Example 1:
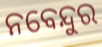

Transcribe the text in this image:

ନବେନ୍ଦୁର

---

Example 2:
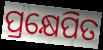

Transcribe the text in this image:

ପ୍ରକ୍ଷେପିତ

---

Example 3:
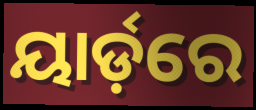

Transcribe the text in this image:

ୟାର୍ଡ଼ରେ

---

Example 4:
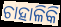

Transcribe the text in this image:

ଚାହାଳିକି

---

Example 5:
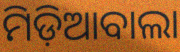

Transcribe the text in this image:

ମିଡ଼ିଆବାଲା